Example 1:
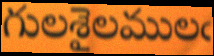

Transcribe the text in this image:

గులశైలములఁ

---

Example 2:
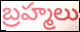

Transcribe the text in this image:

బ్రహ్మలు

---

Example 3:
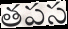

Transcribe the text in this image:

తపస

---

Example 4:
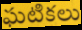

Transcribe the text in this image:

ఘటికలు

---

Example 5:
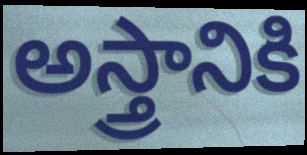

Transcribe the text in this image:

అస్త్రానికి